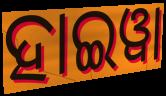
ହାଇୱା